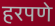
हरपणे